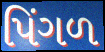
પિંગળ